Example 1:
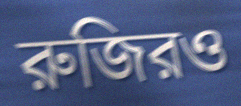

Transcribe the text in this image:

রুজিরও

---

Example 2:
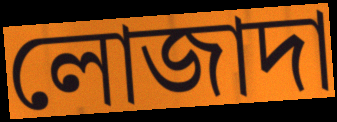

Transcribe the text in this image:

লোজাদা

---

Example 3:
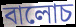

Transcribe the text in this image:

বালোচ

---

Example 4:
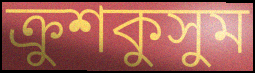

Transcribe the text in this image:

ক্রুশকুসুম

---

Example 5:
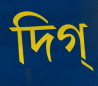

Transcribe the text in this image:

দিগ্